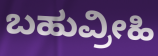
ಬಹುವ್ರೀಹಿ